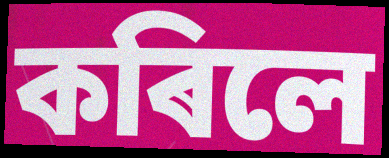
কৰিলে